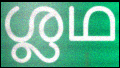
ശ്ലഥ